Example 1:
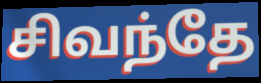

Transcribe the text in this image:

சிவந்தே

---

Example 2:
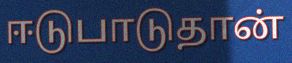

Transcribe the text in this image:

ஈடுபாடுதான்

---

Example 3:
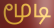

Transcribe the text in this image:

மூடி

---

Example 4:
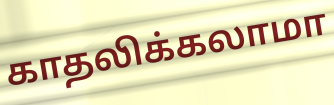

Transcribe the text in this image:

காதலிக்கலாமா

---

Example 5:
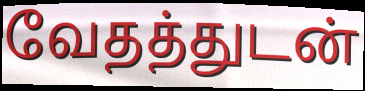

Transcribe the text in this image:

வேதத்துடன்